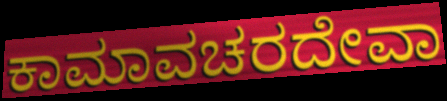
ಕಾಮಾವಚರದೇವಾ